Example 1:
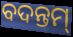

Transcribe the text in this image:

ବଦନ୍ତମ୍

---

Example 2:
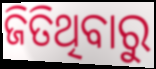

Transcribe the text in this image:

ଜିତିଥିବାରୁ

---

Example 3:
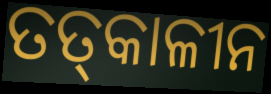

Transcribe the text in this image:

ତତ୍‌କାଳୀନ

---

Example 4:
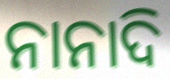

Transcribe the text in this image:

ନାନାଦି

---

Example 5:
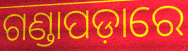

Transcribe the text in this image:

ଗଣ୍ଡାପଡ଼ାରେ